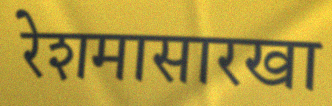
रेशमासारखा